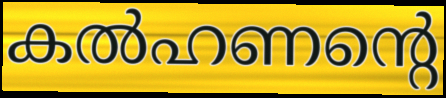
കൽഹണന്റെ